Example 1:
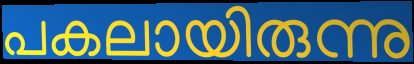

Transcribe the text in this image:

പകലായിരുന്നു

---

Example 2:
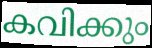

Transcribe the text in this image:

കവിക്കും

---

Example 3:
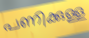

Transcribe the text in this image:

പണിക്കുള്ള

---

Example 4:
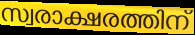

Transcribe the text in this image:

സ്വരാക്ഷരത്തിന്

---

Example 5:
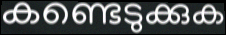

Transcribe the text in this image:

കണ്ടെടുക്കുക